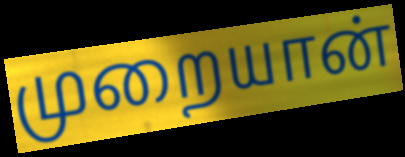
முறையான்